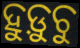
ହୁଡ଼ୁଚୁ